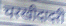
चरखीदादरी